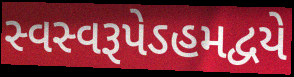
સ્વસ્વરૂપેઽહમદ્વયે